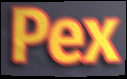
Pex